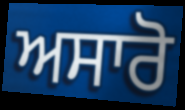
ਅਸਾਰੋ